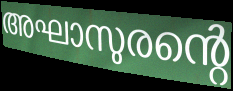
അഘാസുരന്റെ